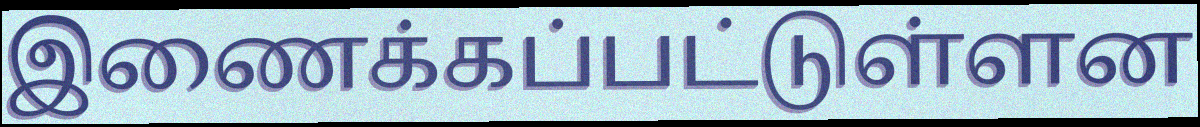
இணைக்கப்பட்டுள்ளன